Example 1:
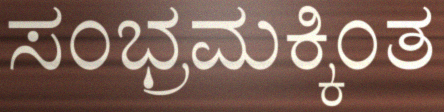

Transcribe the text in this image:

ಸಂಭ್ರಮಕ್ಕಿಂತ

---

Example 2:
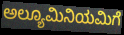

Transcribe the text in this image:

ಅಲ್ಯೂಮಿನಿಯಮಿಗೆ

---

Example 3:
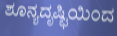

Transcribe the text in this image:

ಶೂನ್ಯದೃಷ್ಟಿಯಿಂದ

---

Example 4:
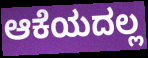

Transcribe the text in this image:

ಆಕೆಯದಲ್ಲ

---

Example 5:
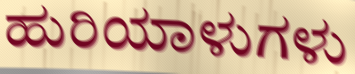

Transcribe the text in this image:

ಹುರಿಯಾಳುಗಳು